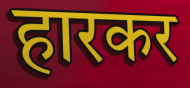
हारकर